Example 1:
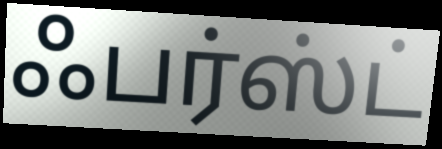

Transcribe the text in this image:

ஃபர்ஸ்ட்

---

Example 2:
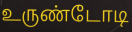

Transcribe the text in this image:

உருண்டோடி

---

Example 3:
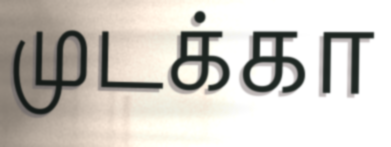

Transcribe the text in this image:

முடக்கா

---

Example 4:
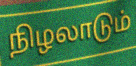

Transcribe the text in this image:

நிழலாடும்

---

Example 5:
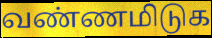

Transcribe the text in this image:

வண்ணமிடுக